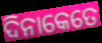
ଦିନାକେତେ